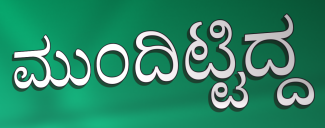
ಮುಂದಿಟ್ಟಿದ್ದ